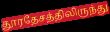
தூரதேசத்திலிருந்து